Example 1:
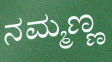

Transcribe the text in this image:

ನಮ್ಮಣ್ಣ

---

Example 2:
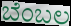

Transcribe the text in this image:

ಬೆಂಬಲ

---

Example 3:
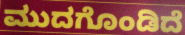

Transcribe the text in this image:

ಮುದಗೊಂಡಿದೆ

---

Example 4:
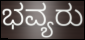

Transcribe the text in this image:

ಭವ್ಯರು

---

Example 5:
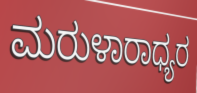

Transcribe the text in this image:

ಮರುಳಾರಾಧ್ಯರ